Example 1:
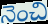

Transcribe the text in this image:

నెంచి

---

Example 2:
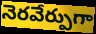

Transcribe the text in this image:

నెరవేర్పుగా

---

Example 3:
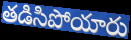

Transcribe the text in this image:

తడిసిపోయారు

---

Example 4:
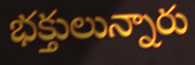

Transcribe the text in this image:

భక్తులున్నారు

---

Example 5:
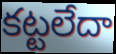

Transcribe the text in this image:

కట్టలేదా